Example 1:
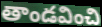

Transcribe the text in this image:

తాండవించి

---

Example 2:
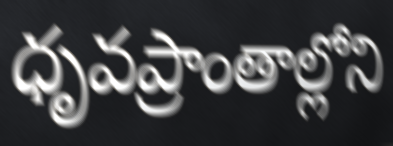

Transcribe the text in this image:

ధృవప్రాంతాల్లోని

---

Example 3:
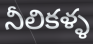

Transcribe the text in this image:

నీలికళ్ళ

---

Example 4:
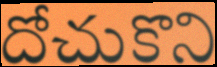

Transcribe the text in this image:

దోచుకొని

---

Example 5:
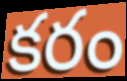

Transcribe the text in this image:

కరం